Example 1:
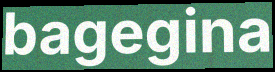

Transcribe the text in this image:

bagegina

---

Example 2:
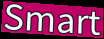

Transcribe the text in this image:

Smart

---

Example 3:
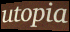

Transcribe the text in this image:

utopia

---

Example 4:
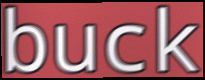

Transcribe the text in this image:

buck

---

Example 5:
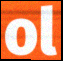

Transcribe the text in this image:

ol